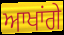
ਆਖਾਂਗੇ